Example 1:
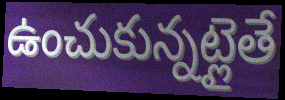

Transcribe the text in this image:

ఉంచుకున్నట్లైతే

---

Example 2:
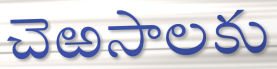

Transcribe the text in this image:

చెఱసాలకు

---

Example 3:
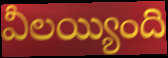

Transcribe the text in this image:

వీలయ్యింది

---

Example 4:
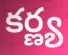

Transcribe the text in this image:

కర్ణ్య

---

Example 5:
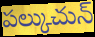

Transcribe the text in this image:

పల్కుచున్